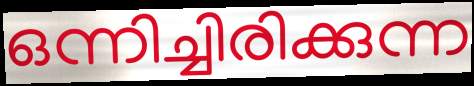
ഒന്നിച്ചിരിക്കുന്ന